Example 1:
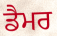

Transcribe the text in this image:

ਡੈਮਰ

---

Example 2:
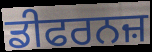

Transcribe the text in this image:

ਡੀਫਰਨਜ਼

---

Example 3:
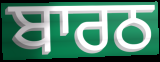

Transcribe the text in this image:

ਬਾਰਠ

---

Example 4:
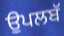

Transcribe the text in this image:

ਉਪਲਬੱ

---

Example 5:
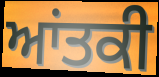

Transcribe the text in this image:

ਆਂਤਕੀ